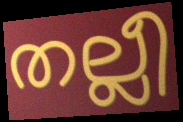
തല്ലീ